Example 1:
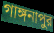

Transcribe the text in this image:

গাঙ্গনাপুর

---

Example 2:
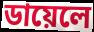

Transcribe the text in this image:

ডায়েলে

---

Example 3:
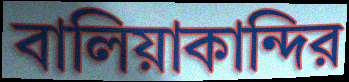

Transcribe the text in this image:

বালিয়াকান্দির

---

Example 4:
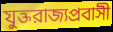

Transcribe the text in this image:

যুক্তরাজ্যপ্রবাসী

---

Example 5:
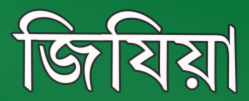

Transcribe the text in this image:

জিযিয়া